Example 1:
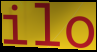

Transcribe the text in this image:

ilo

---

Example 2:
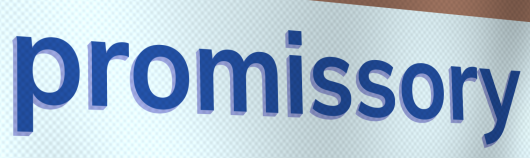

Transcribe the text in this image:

promissory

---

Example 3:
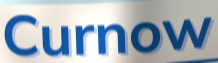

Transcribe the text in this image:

Curnow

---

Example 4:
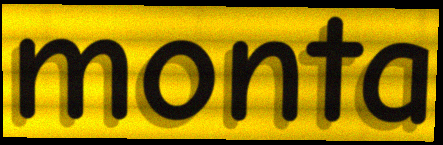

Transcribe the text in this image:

monta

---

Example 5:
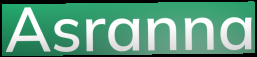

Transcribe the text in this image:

Asranna